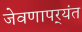
जेवणापर्यंत